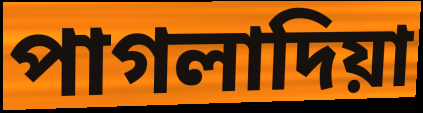
পাগলাদিয়া